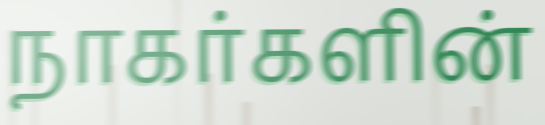
நாகர்களின்